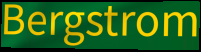
Bergstrom